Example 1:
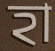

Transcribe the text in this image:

হা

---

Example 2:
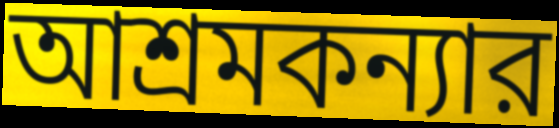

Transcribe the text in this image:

আশ্রমকন্যার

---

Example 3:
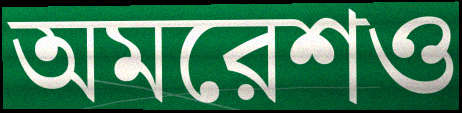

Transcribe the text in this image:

অমরেশও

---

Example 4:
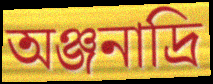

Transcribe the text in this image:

অঞ্জনাদ্রি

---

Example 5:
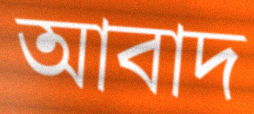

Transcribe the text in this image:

আবাদ